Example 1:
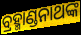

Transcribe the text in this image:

ବ୍ରହ୍ମାଣ୍ଡନାଥଙ୍କ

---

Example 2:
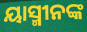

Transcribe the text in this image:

ୟାସ୍ମୀନଙ୍କ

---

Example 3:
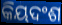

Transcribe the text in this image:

କିୟଦଂଶ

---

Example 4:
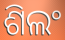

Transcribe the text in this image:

ଶିଲଂ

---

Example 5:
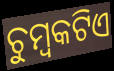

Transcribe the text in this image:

ଚୁମ୍ବକଟିଏ